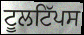
ਟੂਲਟਿੱਪਸ